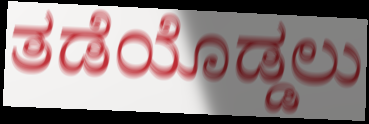
ತಡೆಯೊಡ್ಡಲು